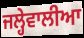
ਜਲ੍ਹੇਵਾਲੀਆ